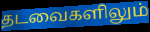
தடவைகளிலும்